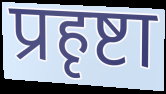
प्रहृष्टा